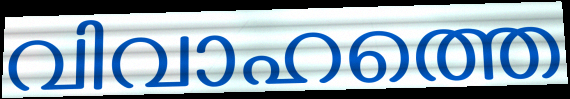
വിവാഹത്തെ